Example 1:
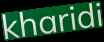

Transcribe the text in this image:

kharidi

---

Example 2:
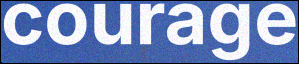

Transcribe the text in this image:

courage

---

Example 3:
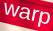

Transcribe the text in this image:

warp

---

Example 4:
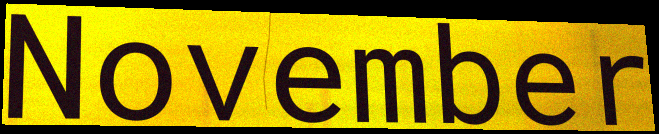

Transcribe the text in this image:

November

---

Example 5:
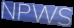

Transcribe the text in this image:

NPWS